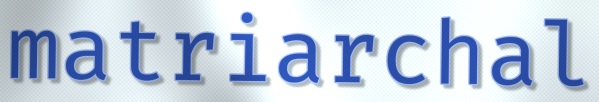
matriarchal